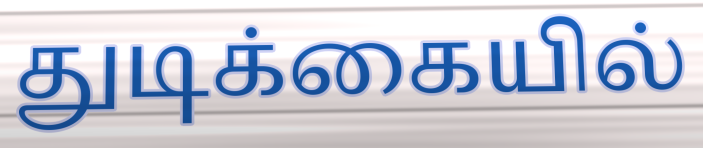
துடிக்கையில்